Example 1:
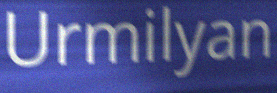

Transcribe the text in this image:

Urmilyan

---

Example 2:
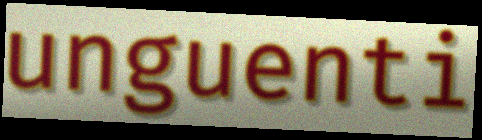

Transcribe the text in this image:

unguenti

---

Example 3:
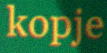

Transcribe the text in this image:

kopje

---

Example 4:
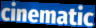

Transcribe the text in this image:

cinematic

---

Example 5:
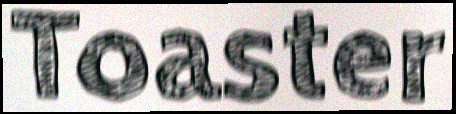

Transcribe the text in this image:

Toaster